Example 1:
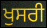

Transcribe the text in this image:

ਖੁਸਰੀ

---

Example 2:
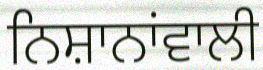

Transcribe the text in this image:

ਨਿਸ਼ਾਨਾਂਵਾਲੀ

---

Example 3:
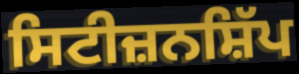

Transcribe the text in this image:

ਸਿਟੀਜ਼ਨਸ਼ਿੱਪ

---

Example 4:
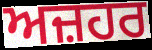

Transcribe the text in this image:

ਅਜ਼ਹਰ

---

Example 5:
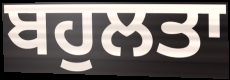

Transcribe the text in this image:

ਬਹੁਲਤਾ